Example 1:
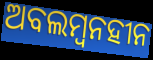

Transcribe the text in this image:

ଅବଲମ୍ବନହୀନ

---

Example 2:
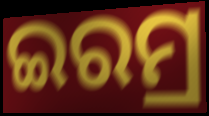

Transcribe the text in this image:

ଇରମ୍ର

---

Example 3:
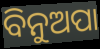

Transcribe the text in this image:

ବିନୁଅପା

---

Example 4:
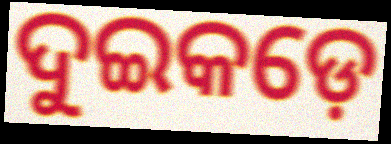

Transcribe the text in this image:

ଦୁଇକଡ଼େ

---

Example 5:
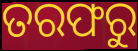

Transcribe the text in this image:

ତରଫରୁ